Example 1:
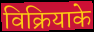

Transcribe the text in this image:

विक्रियाके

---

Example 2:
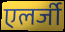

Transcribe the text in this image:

एलर्जी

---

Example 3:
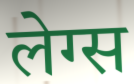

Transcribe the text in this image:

लेग्स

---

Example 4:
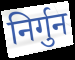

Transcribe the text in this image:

निर्गुन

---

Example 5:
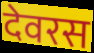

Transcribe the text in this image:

देवरस